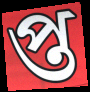
প্ত